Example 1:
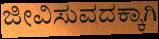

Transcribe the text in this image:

ಜೀವಿಸುವದಕ್ಕಾಗಿ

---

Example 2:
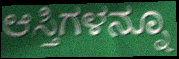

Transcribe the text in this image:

ಆಸ್ತಿಗಳನ್ನೂ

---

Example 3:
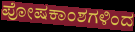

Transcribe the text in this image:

ಪೋಷಕಾಂಶಗಳಿಂದ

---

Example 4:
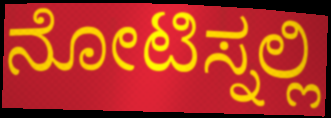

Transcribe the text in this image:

ನೋಟಿಸ್ನಲ್ಲಿ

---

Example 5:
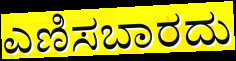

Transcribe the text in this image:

ಎಣಿಸಬಾರದು